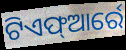
ଟିଏଫ୍ଆର୍ରେ